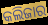
କଲିଜାର